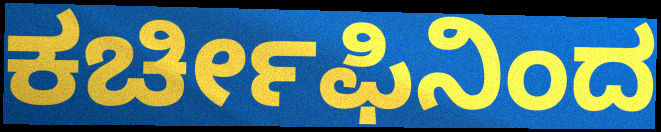
ಕರ್ಚೀಫಿನಿಂದ